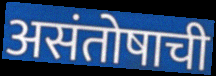
असंतोषाची